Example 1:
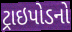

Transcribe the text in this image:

ટ્રાઇપોડનો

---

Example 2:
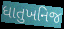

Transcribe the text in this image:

ધાતુખનિજ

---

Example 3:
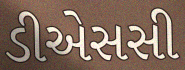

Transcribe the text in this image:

ડીએસસી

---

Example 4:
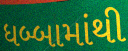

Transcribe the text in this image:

ધબ્બામાંથી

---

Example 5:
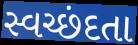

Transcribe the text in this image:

સ્વચ્છંદતા